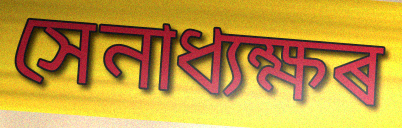
সেনাধ্যক্ষৰ